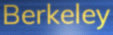
Berkeley